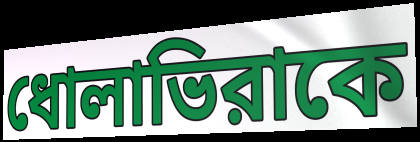
ধোলাভিরাকে